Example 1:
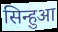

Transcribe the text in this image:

सिन्हुआ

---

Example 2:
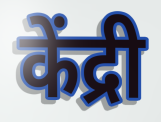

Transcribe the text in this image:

केंद्री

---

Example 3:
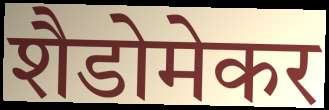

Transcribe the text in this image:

शैडोमेकर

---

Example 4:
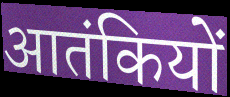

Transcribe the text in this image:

आतंकियों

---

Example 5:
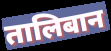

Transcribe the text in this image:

तालिबान